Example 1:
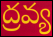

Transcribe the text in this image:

ద్రవ్య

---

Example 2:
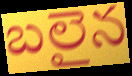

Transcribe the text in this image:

బలైన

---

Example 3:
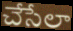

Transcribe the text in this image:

చేసేలా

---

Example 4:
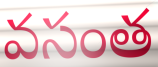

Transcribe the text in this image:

వసంత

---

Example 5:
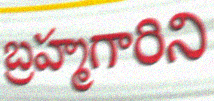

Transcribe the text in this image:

బ్రహ్మగారిని